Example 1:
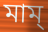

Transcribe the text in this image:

মাম্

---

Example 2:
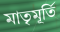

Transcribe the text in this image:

মাতৃমূর্তি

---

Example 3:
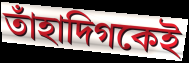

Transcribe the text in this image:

তাঁহাদিগকেই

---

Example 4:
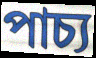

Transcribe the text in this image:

পাচ্য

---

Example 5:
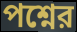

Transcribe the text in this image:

পশ্নের